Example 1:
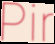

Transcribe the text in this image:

Pir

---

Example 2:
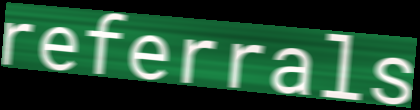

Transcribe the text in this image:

referrals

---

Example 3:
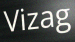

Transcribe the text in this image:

Vizag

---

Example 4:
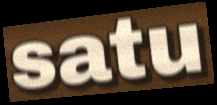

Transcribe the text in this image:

satu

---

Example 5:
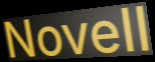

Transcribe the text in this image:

Novell